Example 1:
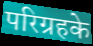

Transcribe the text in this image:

परिग्रहके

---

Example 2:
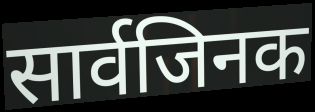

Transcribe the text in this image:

सार्वजिनक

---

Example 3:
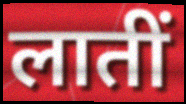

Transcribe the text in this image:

लातीं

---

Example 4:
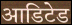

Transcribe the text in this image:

आडिटेड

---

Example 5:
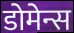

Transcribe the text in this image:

डोमेन्स